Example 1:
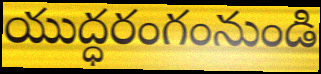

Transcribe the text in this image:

యుద్ధరంగంనుండి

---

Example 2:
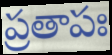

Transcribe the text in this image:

ప్రతాపః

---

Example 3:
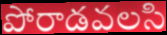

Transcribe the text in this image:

పోరాడవలసి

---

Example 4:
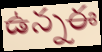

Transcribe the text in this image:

ఉన్నఈ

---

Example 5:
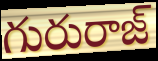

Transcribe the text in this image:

గురురాజ్